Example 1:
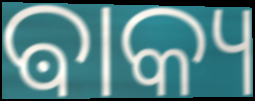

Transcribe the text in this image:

ଵାକ୍ୟ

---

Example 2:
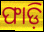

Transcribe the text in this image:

ଫାଡ଼ି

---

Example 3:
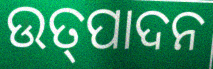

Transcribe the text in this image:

ଉତ୍‌ପାଦନ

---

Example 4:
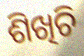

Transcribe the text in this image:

ଶିଖିଚି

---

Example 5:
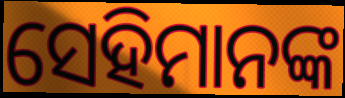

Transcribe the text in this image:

ସେହିମାନଙ୍କ